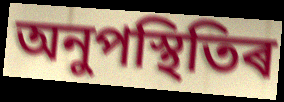
অনুপস্থিতিৰ